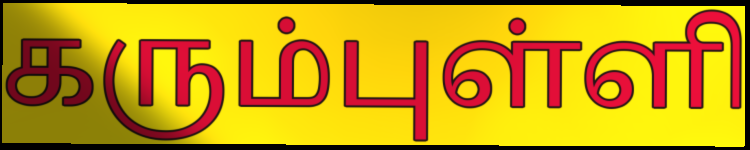
கரும்புள்ளி